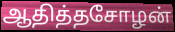
ஆதித்தசோழன்